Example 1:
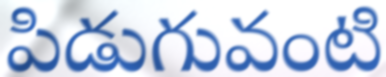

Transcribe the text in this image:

పిడుగువంటి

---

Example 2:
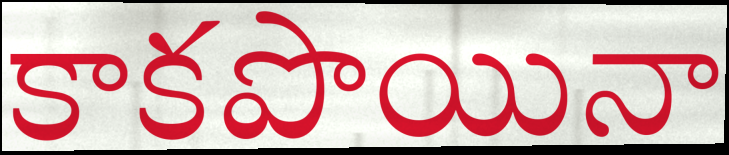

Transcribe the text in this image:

కాకపొయినా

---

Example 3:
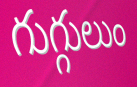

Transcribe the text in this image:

గుగ్గులుం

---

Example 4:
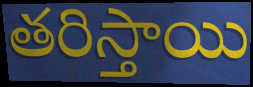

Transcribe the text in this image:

తరిస్తాయి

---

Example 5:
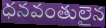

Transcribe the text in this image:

ధనవంతులైన